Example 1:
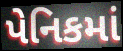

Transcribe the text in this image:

પેનિકમાં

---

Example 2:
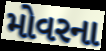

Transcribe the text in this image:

મોવરના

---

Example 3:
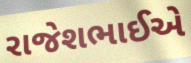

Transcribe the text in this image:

રાજેશભાઈએ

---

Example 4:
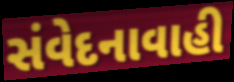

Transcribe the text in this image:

સંવેદનાવાહી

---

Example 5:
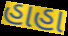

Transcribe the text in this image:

હાહા